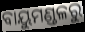
ବାୟୁମଣ୍ଡଳରୁ